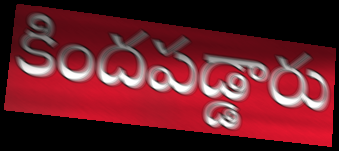
కిందపడ్డారు